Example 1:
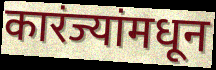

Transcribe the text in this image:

कारंज्यांमधून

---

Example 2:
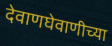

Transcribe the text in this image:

देवाणघेवाणीच्या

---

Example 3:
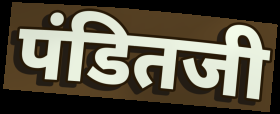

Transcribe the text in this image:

पंडितजी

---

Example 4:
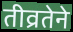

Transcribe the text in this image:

तीव्रतेने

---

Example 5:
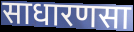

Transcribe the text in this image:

साधारणसा